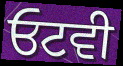
ਓਟਵੀ